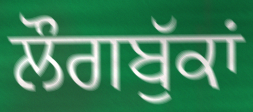
ਲੌਗਬੁੱਕਾਂ